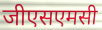
जीएसएमसी